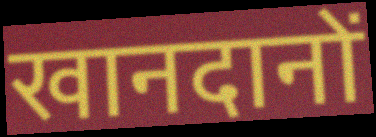
खानदानों